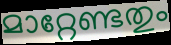
മാറ്റേണ്ടതും